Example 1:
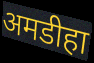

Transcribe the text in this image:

अमडीहा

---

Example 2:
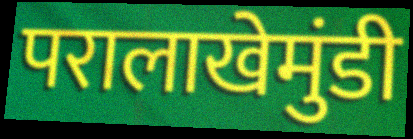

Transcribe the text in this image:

परालाखेमुंडी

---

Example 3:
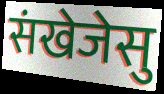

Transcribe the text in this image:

संखेजेसु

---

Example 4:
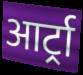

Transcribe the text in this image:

आर्ट्रा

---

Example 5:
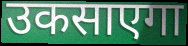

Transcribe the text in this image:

उकसाएगा